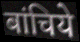
बांचिये